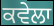
ਕਵੇਲਾ